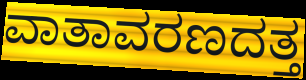
ವಾತಾವರಣದತ್ತ